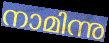
നാമിന്നു